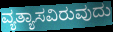
ವ್ಯತ್ಯಾಸವಿರುವುದು